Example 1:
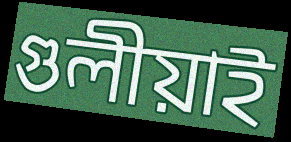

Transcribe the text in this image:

গুলীয়াই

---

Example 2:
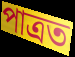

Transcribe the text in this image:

পাত্ৰত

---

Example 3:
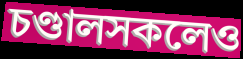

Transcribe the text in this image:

চণ্ডালসকলেও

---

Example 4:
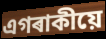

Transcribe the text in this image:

এগৰাকীয়ে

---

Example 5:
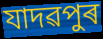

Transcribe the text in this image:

যাদৱপুৰ